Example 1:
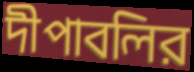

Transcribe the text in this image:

দীপাবলির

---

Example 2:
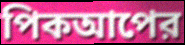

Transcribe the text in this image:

পিকআপের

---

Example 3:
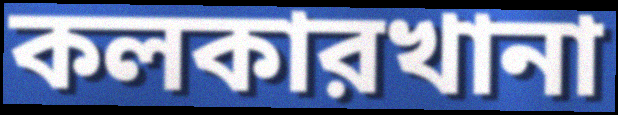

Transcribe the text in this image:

কলকারখানা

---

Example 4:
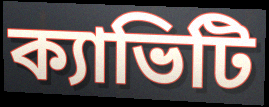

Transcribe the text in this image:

ক্যাভিটি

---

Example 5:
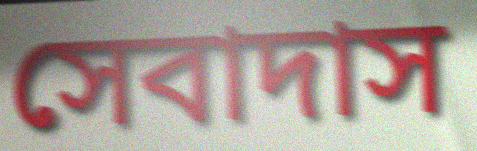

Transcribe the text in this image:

সেবাদাস